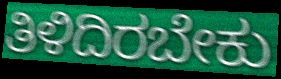
ತಿಳಿದಿರಬೇಕು